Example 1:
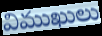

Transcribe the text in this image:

విముఖులు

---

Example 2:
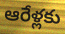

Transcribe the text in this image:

ఆరేళ్లకు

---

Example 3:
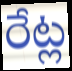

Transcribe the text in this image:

రేట్ల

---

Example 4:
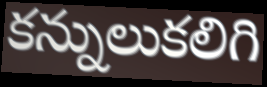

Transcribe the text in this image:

కన్నులుకలిగి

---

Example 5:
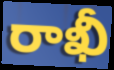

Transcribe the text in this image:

రాఖీ